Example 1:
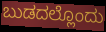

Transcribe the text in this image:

ಬುಡದಲ್ಲೊಂದು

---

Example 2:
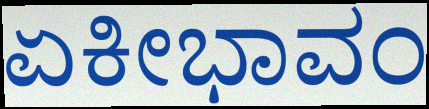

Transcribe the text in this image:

ಏಕೀಭಾವಂ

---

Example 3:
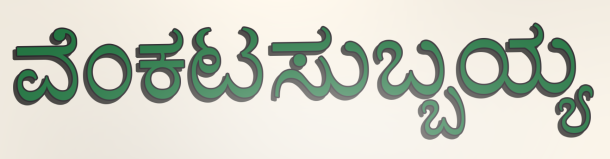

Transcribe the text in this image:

ವೆಂಕಟಸುಬ್ಬಯ್ಯ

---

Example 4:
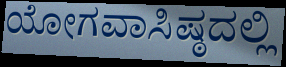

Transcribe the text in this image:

ಯೋಗವಾಸಿಷ್ಠದಲ್ಲಿ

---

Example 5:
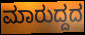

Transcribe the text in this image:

ಮಾರುದ್ದದ